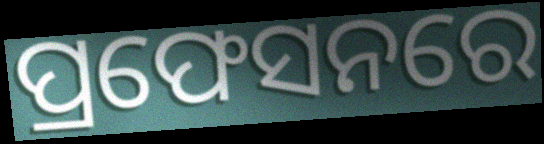
ପ୍ରଫେସନରେ